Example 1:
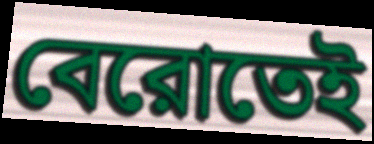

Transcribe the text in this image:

বেরোতেই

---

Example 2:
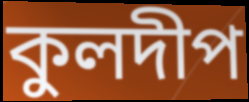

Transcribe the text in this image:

কুলদীপ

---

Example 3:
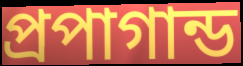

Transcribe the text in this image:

প্রপাগান্ড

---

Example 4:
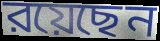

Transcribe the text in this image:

রয়েছেন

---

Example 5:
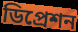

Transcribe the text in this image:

ডিপ্রেশন